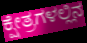
ಕ್ಷೇತ್ರಗಳಲ್ಲಿನ